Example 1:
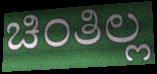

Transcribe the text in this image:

ಚಿಂತಿಲ್ಲ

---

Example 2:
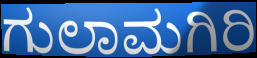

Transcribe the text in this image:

ಗುಲಾಮಗಿರಿ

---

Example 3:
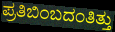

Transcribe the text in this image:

ಪ್ರತಿಬಿಂಬದಂತಿತ್ತು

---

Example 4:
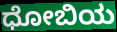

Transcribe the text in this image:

ಧೋಬಿಯ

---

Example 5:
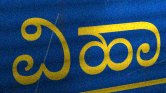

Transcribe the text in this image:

ವಿಹಾ